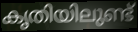
കൃതിയിലുണ്ട്